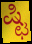
ಷ್ಟಿ